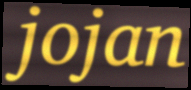
jojan